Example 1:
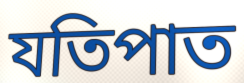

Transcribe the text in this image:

যতিপাত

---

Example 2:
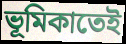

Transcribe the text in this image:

ভূমিকাতেই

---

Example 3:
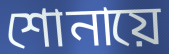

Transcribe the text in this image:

শোনায়ে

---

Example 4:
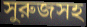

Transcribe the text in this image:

সুরুজসহ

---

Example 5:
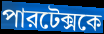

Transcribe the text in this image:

পারটেক্সকে